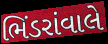
ભિંડરાંવાલે